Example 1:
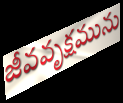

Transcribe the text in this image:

జీవవృక్షమును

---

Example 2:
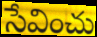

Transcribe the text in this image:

సేవించు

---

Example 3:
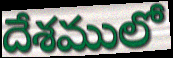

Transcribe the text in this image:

దేశములో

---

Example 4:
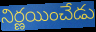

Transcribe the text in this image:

నిర్ణయించేడు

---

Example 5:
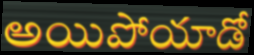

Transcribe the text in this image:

అయిపోయాడో